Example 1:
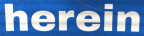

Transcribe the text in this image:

herein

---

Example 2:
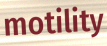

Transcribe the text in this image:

motility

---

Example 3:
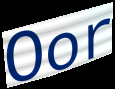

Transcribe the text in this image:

Oor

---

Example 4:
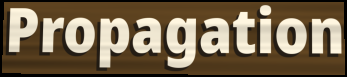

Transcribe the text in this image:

Propagation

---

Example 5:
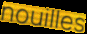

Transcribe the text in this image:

nouilles